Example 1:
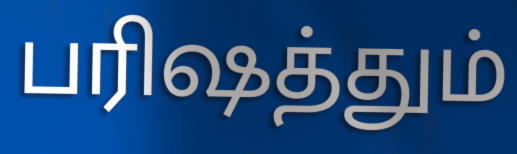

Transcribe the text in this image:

பரிஷத்தும்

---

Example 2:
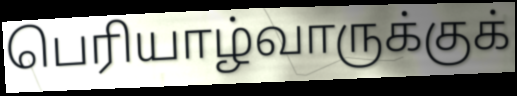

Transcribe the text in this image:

பெரியாழ்வாருக்குக்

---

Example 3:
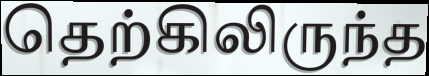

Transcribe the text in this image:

தெற்கிலிருந்த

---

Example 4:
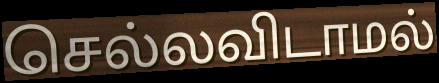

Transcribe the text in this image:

செல்லவிடாமல்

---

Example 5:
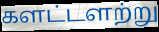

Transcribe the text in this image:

களட்டளற்று